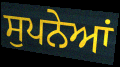
ਸੁਪਨੇਆਂ